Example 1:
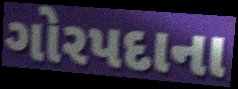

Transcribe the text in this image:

ગોરપદાના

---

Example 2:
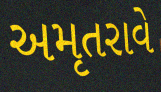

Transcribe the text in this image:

અમૃતરાવે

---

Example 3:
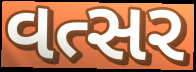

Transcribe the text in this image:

વત્સર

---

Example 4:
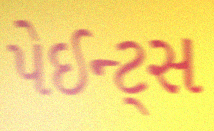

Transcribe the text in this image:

પેઈન્ટ્સ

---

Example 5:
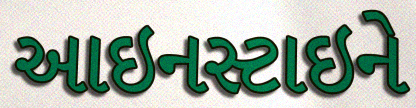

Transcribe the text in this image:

આઇનસ્ટાઇને